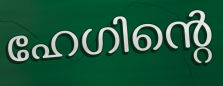
ഹേഗിന്റെ